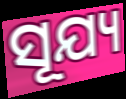
ସୂଯ୍ୟ